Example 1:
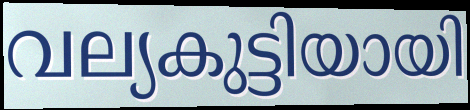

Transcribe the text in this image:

വല്യകുട്ടിയായി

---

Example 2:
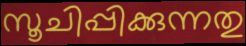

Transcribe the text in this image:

സൂചിപ്പിക്കുന്നതു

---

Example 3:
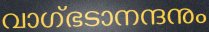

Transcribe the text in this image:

വാഗ്ഭടാനന്ദനും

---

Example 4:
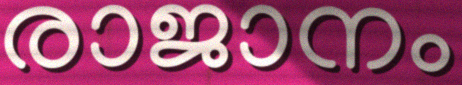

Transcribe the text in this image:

രാജാനം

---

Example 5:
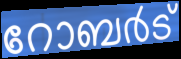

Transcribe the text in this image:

റോബർട്